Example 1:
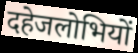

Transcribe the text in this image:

दहेजलोभियों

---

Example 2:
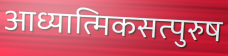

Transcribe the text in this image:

आध्यात्मिकसत्पुरुष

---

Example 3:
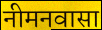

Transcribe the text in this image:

नीमनवासा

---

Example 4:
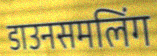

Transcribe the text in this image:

डाउनसमलिंग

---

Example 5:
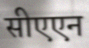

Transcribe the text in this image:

सीएएन